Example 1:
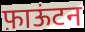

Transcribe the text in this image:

फ़ाऊंटन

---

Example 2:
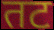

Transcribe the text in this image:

तट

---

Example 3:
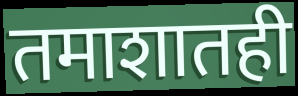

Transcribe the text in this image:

तमाशातही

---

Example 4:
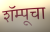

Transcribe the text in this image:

शॅम्पूचा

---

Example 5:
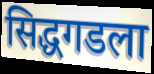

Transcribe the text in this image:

सिद्धगडला